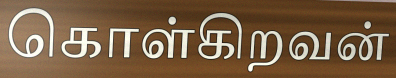
கொள்கிறவன்